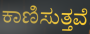
ಕಾಣಿಸುತ್ತವೆ